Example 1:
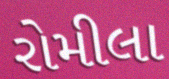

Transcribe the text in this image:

રોમીલા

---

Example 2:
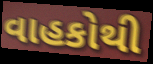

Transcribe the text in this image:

વાહકોથી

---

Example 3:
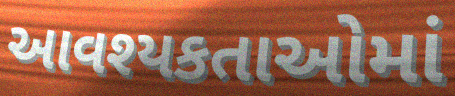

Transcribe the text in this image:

આવશ્યકતાઓમાં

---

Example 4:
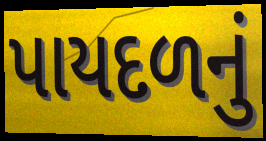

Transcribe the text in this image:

પાયદળનું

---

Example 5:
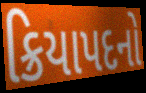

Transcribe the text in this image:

ક્રિયાપદનો